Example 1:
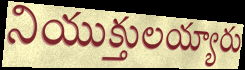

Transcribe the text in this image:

నియుక్తులయ్యారు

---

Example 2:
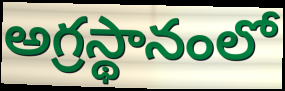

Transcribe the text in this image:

అగ్రస్థానంలో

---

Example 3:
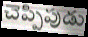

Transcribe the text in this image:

చెప్పిపుడు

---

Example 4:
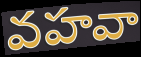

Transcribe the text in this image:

వహవా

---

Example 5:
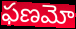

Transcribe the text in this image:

ఫణమో